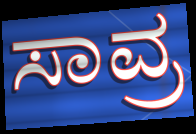
ಸಾವ್ರ